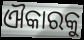
ଐକାରକୁ